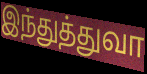
இந்துத்துவா